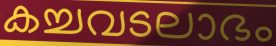
കച്ചവടലാഭം